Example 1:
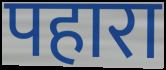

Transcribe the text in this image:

पहारा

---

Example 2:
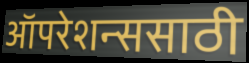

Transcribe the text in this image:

ऑपरेशन्ससाठी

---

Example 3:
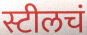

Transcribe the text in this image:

स्टीलचं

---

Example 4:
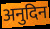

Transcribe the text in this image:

अनुदिन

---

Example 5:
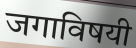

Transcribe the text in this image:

जगाविषयी